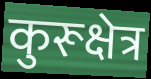
कुरूक्षेत्र